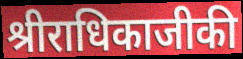
श्रीराधिकाजीकी